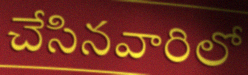
చేసినవారిలో